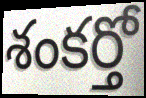
శంకర్తో